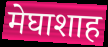
मेघाशाह